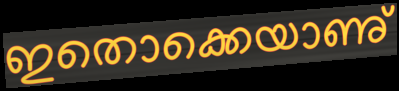
ഇതൊക്കെയാണു്